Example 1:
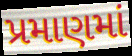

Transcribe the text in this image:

પ્રમાણમાં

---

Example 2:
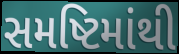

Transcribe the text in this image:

સમષ્ટિમાંથી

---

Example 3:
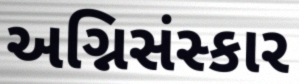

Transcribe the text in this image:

અગ્નિસંસ્કાર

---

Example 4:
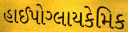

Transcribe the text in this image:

હાઈપોગ્લાયકેમિક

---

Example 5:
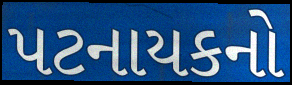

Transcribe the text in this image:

પટનાયકનો